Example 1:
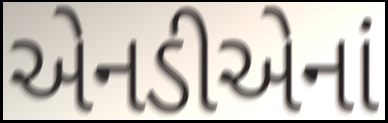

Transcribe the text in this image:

એનડીએનાં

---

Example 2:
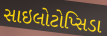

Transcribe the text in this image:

સાઇલોટોપ્સિડા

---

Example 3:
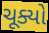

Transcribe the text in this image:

ચૂક્યો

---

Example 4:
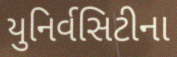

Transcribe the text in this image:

યુનિર્વસિટીના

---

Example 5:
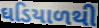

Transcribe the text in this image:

ઘડિયાળથી